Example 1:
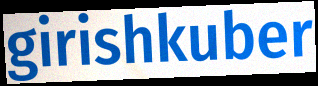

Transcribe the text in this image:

girishkuber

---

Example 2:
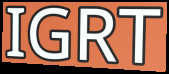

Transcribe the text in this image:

IGRT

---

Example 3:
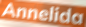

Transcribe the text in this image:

Annelida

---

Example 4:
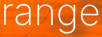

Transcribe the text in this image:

range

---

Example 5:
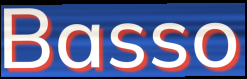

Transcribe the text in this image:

Basso